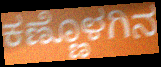
ಕಣ್ಣೊಳಗಿನ